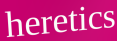
heretics